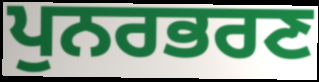
ਪੁਨਰਭਰਣ